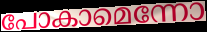
പോകാമെന്നോ